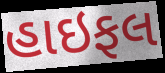
હાઇફલ